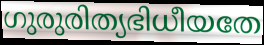
ഗുരുരിത്യഭിധീയതേ